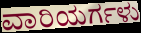
ವಾರಿಯರ್ಗಳು